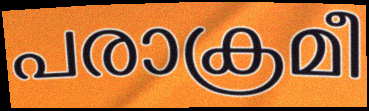
പരാക്രമീ